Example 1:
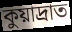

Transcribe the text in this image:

কুয়াদ্রাত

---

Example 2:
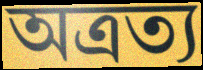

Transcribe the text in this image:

অত্রত্য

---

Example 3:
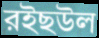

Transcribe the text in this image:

রইছউল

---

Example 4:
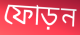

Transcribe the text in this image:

ফোড়ন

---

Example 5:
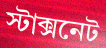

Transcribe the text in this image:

স্টাক্সনেট